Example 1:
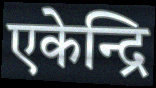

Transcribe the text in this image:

एकेन्द्रि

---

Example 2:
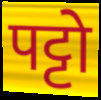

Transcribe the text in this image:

पट्टो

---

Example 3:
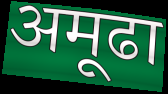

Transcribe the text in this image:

अमूढा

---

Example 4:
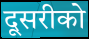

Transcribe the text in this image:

दूसरीको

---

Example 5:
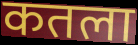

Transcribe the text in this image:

कतला